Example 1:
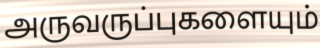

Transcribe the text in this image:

அருவருப்புகளையும்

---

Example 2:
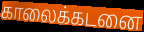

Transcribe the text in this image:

காலைக்கடனை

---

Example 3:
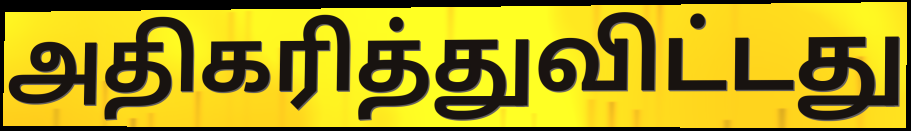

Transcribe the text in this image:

அதிகரித்துவிட்டது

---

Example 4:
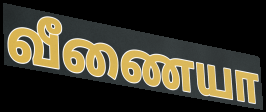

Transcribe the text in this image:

வீணையா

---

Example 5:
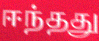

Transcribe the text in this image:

ஈந்தது